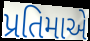
પ્રતિમાએ